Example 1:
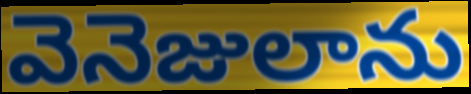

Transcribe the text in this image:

వెనెజులాను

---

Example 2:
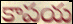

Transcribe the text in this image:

కాపయ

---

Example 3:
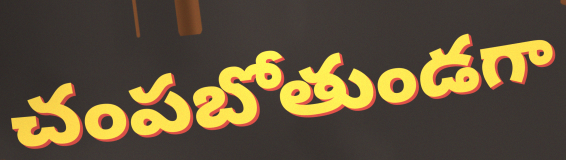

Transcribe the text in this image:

చంపబోతుండగా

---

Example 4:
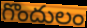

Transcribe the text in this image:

గొందులం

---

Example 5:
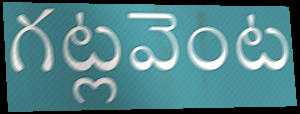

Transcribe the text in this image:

గట్లవెంట